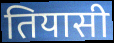
तियासी